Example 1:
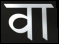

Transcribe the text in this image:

वा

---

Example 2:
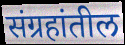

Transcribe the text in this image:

संग्रहांतील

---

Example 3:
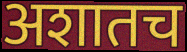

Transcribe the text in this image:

अशातच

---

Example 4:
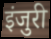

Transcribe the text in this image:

इंजुरी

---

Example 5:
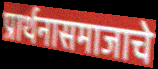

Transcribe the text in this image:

प्रार्थनासमाजाचे